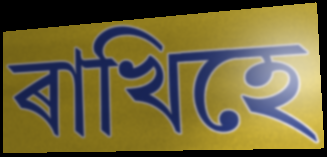
ৰাখিহে